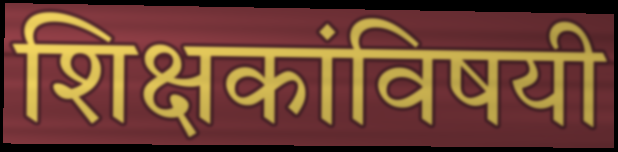
शिक्षकांविषयी